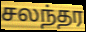
சலந்தர